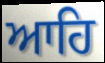
ਆਹਿ